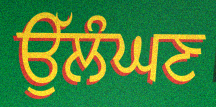
ਉੱਲੰਘਣ